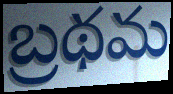
బ్రథమ